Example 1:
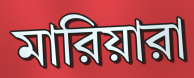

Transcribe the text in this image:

মারিয়ারা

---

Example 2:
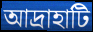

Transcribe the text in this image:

আদ্রাহাটি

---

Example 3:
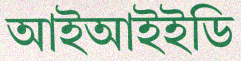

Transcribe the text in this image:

আইআইইডি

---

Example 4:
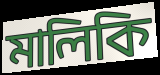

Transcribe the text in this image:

মালিকি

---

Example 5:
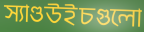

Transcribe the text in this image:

স্যাণ্ডউইচগুলো